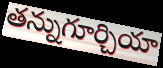
తన్నుగూర్చియా